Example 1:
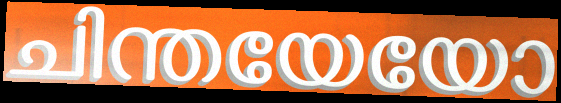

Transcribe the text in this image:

ചിന്തയേയോ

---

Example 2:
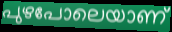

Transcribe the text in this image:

പുഴപോലെയാണ്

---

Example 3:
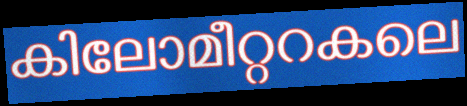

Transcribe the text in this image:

കിലോമീറ്ററകലെ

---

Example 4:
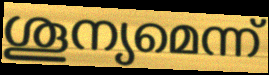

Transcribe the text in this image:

ശൂന്യമെന്ന്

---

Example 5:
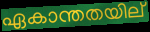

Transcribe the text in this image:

ഏകാന്തതയില്